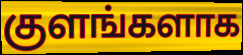
குளங்களாக